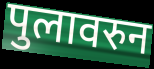
पुलावरुन